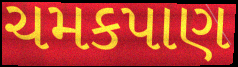
ચમકપાણ